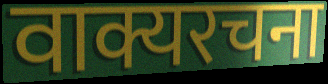
वाक्यरचना